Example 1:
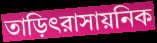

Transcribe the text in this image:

তাড়িৎরাসায়নিক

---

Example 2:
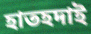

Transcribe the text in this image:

হাতহদাই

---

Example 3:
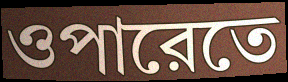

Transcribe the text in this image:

ওপারেতে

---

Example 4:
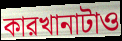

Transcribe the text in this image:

কারখানাটাও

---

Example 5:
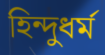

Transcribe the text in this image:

হিন্দুধর্ম